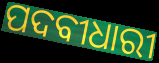
ପଦବୀଧାରୀ